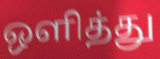
ஒளித்து